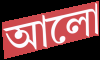
আলো